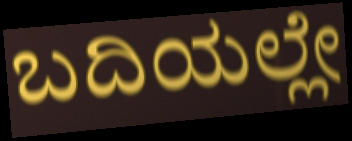
ಬದಿಯಲ್ಲೇ